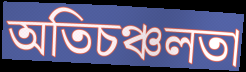
অতিচঞ্চলতা